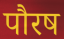
पौरष